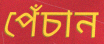
পেঁচান